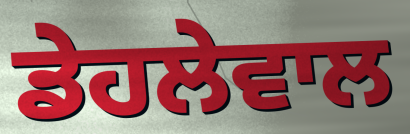
ਡੇਹਲੇਵਾਲ